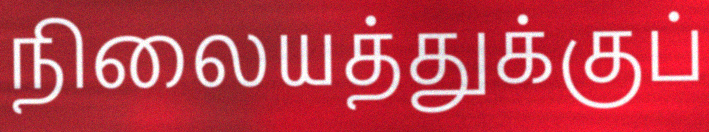
நிலையத்துக்குப்